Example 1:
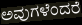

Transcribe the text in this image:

ಅವುಗಳೆಂದರೆ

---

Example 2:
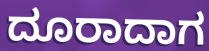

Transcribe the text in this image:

ದೂರಾದಾಗ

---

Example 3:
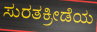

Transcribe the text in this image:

ಸುರತಕ್ರೀಡೆಯ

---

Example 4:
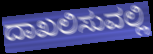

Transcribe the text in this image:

ದಾಖಲಿಸುವಲ್ಲಿ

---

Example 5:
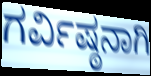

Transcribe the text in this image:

ಗರ್ವಿಷ್ಠನಾಗಿ